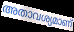
അതാവശ്യമാണ്